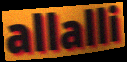
allalli